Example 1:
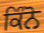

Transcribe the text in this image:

ਕਿੰਨੋ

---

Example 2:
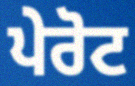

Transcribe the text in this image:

ਪੇਰੋਟ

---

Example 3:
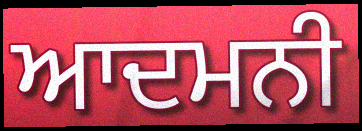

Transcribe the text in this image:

ਆਦਮਨੀ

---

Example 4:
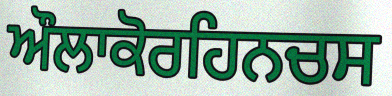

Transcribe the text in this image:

ਔਲਾਕੋਰਹਿਨਚਸ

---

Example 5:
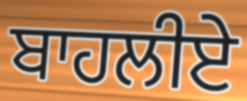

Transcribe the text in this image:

ਬਾਹਲੀਏ